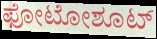
ಫೋಟೋಶೂಟ್